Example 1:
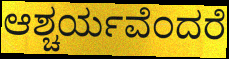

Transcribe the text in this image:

ಆಶ್ಚರ್ಯವೆಂದರೆ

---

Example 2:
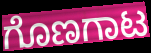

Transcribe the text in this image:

ಗೊಣಗಾಟ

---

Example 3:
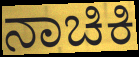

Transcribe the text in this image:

ನಾಚಿಕಿ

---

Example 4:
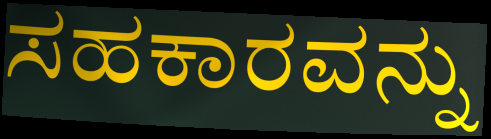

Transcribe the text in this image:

ಸಹಕಾರವನ್ನು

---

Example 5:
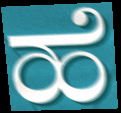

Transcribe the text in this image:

ಹೆ